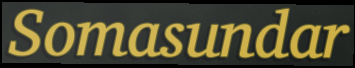
Somasundar